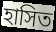
হাসিত